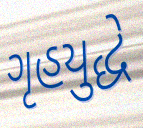
ગૃહયુદ્ધે